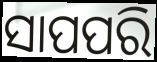
ସାପପରି